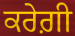
ਕਰੇਗ਼ੀ